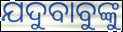
ଯଦୁବାବୁଙ୍କୁ